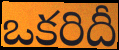
ఒకరిదీ